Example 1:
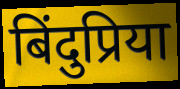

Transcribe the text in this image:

बिंदुप्रिया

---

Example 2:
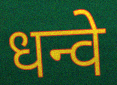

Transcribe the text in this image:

धन्वे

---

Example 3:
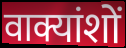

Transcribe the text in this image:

वाक्यांशों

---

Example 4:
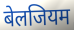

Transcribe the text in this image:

बेलजियम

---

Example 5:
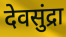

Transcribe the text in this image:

देवसुंद्रा